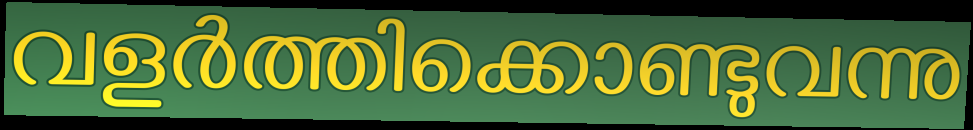
വളർത്തിക്കൊണ്ടുവന്നു